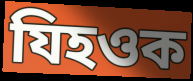
যিহওক